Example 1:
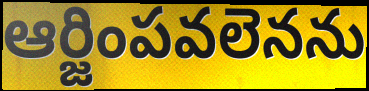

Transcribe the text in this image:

ఆర్జింపవలెనను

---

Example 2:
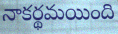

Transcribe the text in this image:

నాకర్థమయింది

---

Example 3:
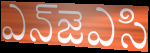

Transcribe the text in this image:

ఎన్‌జెఎసి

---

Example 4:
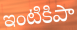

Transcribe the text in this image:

ఇంటికిపా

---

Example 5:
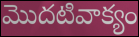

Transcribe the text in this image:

మొదటివాక్యం